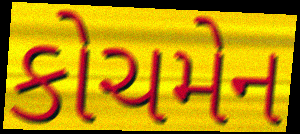
કોચમેન